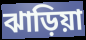
ঝাড়িয়া